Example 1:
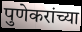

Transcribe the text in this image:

पुणेकरांच्या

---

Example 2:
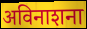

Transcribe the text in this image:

अविनाशना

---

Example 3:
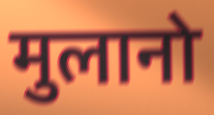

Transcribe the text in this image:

मुलानो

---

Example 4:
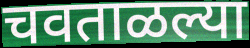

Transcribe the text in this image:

चवताळल्या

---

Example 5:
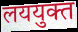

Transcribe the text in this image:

लययुक्त